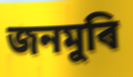
জনমুৰি